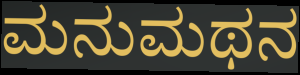
ಮನುಮಥನ